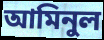
আমিনুল